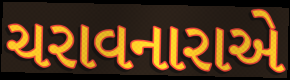
ચરાવનારાએ